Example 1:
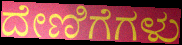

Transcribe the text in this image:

ದೇಣಿಗೆಗಳು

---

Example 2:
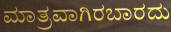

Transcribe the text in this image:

ಮಾತ್ರವಾಗಿರಬಾರದು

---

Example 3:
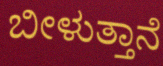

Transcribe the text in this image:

ಬೀಳುತ್ತಾನೆ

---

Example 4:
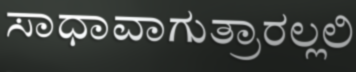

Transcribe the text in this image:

ಸಾಧಾವಾಗುತ್ರಾರಲ್ಲಲಿ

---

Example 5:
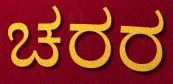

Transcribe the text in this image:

ಚರರ